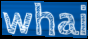
whai